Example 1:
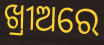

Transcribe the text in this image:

ଖ୍ରୀଅରେ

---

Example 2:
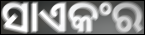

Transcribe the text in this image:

ସାଏକଂର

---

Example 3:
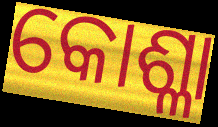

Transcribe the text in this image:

କୋଶ୍ଳା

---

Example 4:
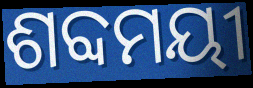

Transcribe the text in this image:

ଶବ୍ଦମୟୀ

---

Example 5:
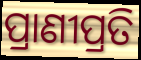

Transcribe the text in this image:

ପ୍ରାଣୀପ୍ରତି